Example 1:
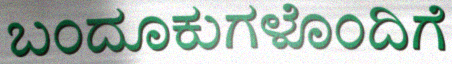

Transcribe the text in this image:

ಬಂದೂಕುಗಳೊಂದಿಗೆ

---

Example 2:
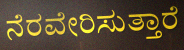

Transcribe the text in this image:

ನೆರವೇರಿಸುತ್ತಾರೆ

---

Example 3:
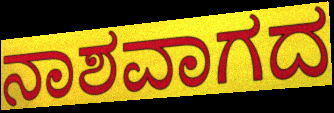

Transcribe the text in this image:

ನಾಶವಾಗದ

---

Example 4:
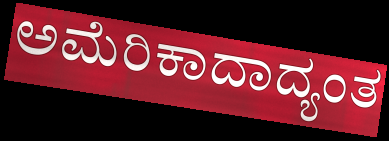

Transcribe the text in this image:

ಅಮೆರಿಕಾದಾದ್ಯಂತ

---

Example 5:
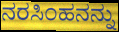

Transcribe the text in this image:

ನರಸಿಂಹನನ್ನು